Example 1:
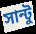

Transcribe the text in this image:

সান্টু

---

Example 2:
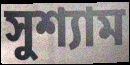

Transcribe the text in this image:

সুশ্যাম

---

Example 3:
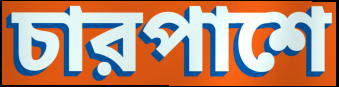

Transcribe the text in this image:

চারপাশে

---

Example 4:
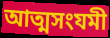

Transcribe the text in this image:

আত্মসংযমী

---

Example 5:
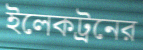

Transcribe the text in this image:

ইলেকট্রনের